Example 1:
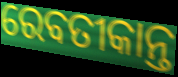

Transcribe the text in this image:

ରେବତୀକାନ୍ତ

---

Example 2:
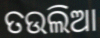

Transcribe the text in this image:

ତଉଲିଆ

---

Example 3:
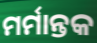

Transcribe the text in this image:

ମର୍ମାନ୍ତକ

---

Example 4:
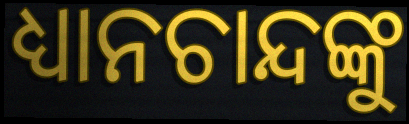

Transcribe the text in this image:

ଧ୍ୟାନଚାନ୍ଦଙ୍କୁ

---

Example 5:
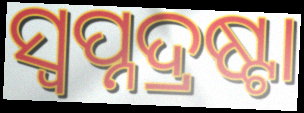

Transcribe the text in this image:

ସ୍ୱପ୍ନଦ୍ରଷ୍ଟା